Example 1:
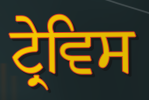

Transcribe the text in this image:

ਟ੍ਰੇਵਿਸ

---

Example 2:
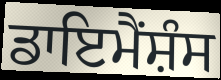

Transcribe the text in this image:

ਡਾਇਮੈਂਸ਼ੰਸ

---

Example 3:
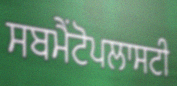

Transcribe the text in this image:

ਸਬਮੈਂਟੋਪਲਾਸਟੀ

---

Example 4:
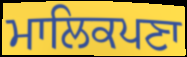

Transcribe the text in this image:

ਮਾਲਿਕਪਣਾ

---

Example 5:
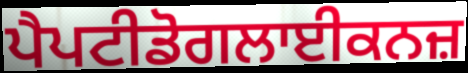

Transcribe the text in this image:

ਪੈਪਟੀਡੋਗਲਾਈਕਨਜ਼